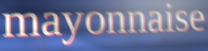
mayonnaise